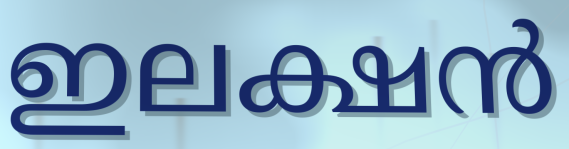
ഇലക്ഷൻ